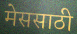
मेससाठी